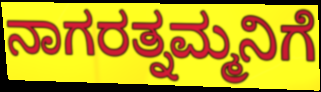
ನಾಗರತ್ನಮ್ಮನಿಗೆ